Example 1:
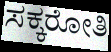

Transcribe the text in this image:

ಸಕ್ಕರೋತಿ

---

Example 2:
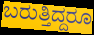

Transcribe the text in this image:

ಬರುತ್ತಿದ್ದರೂ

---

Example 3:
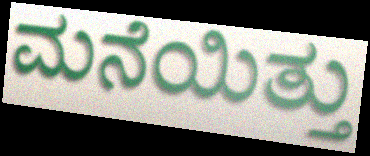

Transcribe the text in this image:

ಮನೆಯಿತ್ತು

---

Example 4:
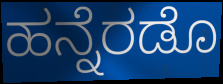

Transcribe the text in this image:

ಹನ್ನೆರಡೊ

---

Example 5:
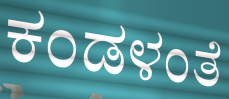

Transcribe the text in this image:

ಕಂಡಳಂತೆ